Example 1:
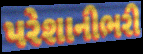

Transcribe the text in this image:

પરેશાનીભરી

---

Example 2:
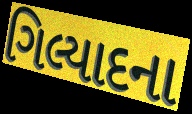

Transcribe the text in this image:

ગિલ્યાદના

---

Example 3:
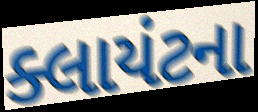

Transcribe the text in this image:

ક્લાયંટના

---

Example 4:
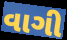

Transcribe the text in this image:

વાગી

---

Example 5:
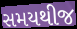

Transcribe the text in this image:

સમયથીજ